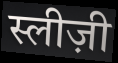
स्लीज़ी